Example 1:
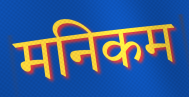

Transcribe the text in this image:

मनिकम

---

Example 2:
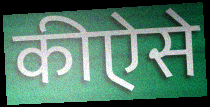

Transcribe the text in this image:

कीऐसे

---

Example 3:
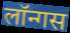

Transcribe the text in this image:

लॉन्गस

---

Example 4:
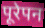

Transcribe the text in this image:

पूरेपन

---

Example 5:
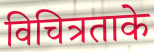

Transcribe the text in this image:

विचित्रताके